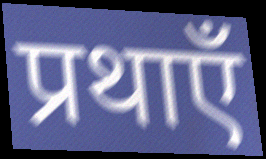
प्रथाएँ